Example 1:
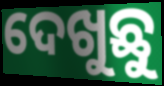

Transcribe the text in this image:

ଦେଖୁଛୁ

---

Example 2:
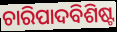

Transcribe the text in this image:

ଚାରିପାଦବିଶିଷ୍ଟ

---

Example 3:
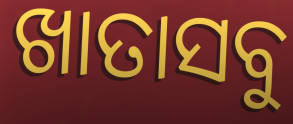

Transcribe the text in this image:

ଖାତାସବୁ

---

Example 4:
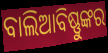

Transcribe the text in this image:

ବାଲିଆବିଷ୍ଣୁଙ୍କର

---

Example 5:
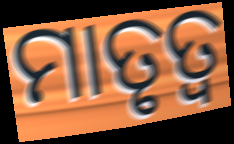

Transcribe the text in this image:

ମାତୃତ୍ୱ